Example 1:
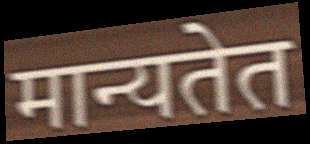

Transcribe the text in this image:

मान्यतेत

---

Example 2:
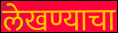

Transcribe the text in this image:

लेखण्याचा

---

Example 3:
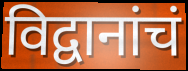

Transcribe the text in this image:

विद्वानांचं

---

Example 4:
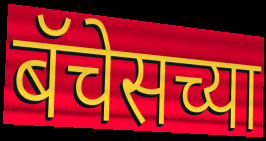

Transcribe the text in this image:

बॅचेसच्या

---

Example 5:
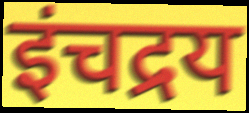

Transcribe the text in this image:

इंचद्रय